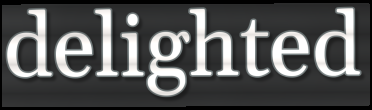
delighted